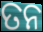
ତନ